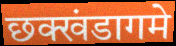
छक्खंडागमे